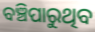
ବଞ୍ଚିପାରୁଥିବ